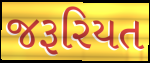
જરૂરિયત